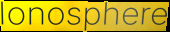
Ionosphere